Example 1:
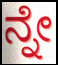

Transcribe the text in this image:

ನ್ನೇ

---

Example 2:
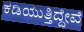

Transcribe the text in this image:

ಕಡಿಯುತ್ತಿದ್ದೇವೆ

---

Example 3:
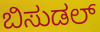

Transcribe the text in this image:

ಬಿಸುಡಲ್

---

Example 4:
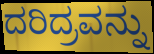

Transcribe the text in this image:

ದರಿದ್ರವನ್ನು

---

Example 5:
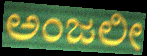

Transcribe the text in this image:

ಅಂಜಲೀ